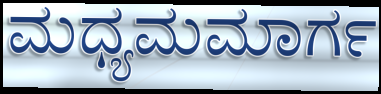
ಮಧ್ಯಮಮಾರ್ಗ